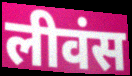
लीवंस